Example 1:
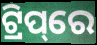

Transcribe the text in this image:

ଟ୍ରିପ୍‌ରେ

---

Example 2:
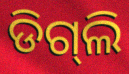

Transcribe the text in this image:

ଡିଗ୍‌ଲି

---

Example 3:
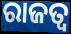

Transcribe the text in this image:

ରାଜତ୍ଵ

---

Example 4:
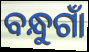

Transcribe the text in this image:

ବନ୍ଧୁଗାଁ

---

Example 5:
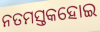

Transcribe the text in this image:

ନତମସ୍ତକହୋଇ